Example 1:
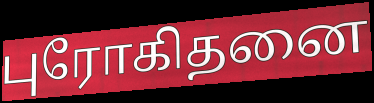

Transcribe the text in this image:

புரோகிதனை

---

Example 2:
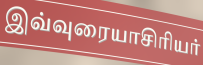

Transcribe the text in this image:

இவ்வுரையாசிரியர்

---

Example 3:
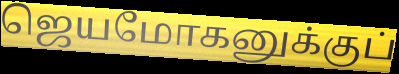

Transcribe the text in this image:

ஜெயமோகனுக்குப்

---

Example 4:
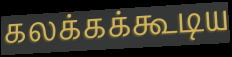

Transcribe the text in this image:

கலக்கக்கூடிய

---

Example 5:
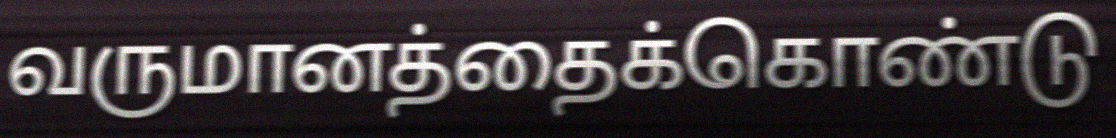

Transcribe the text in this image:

வருமானத்தைக்கொண்டு